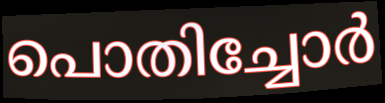
പൊതിച്ചോർ